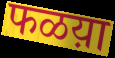
फळय़ा